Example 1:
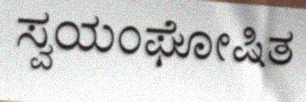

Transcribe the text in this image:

ಸ್ವಯಂಘೋಷಿತ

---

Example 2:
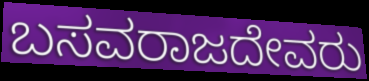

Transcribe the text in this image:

ಬಸವರಾಜದೇವರು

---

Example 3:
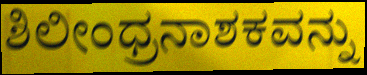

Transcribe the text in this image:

ಶಿಲೀಂಧ್ರನಾಶಕವನ್ನು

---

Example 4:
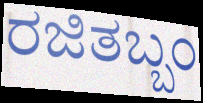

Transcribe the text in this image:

ರಜಿತಬ್ಬಂ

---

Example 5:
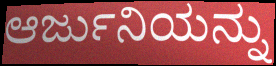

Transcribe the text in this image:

ಆರ್ಜುನಿಯನ್ನು